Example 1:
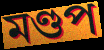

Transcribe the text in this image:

মণ্ডপ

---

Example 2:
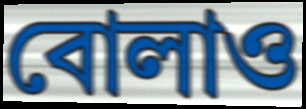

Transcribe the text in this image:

বোলাও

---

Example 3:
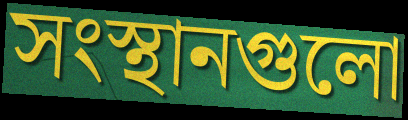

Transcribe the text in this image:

সংস্থানগুলো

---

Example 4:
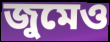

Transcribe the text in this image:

জুমেও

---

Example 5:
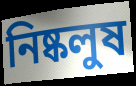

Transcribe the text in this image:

নিষ্কলুষ